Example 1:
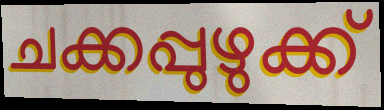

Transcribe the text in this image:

ചക്കപ്പുഴുക്ക്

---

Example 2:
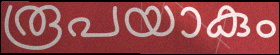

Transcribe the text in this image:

രൂപയാകും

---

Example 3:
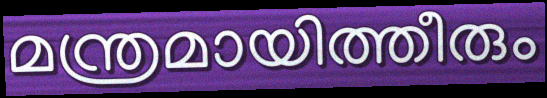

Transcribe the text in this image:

മന്ത്രമായിത്തീരും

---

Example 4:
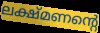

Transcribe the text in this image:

ലക്ഷ്മണന്റെ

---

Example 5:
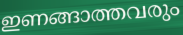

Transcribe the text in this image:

ഇണങ്ങാത്തവരും